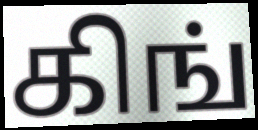
கிங்